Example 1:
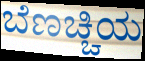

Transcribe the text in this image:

ಬೆಣಚ್ಚಿಯ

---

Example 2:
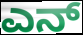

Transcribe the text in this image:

ಎನ್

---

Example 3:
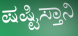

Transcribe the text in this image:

ಷಷ್ಟಿಸ್ತಾನಿ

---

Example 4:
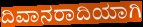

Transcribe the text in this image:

ದಿವಾನರಾದಿಯಾಗಿ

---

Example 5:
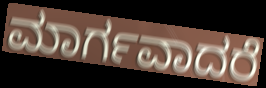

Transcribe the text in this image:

ಮಾರ್ಗವಾದರೆ